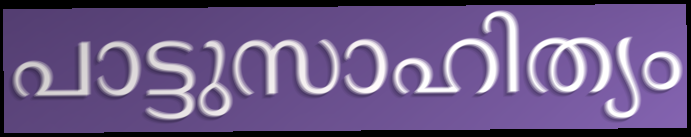
പാട്ടുസാഹിത്യം